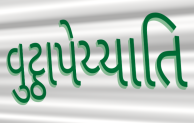
વુટ્ઠાપેય્યાતિ